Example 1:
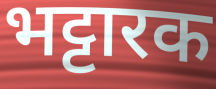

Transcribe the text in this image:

भट्टारक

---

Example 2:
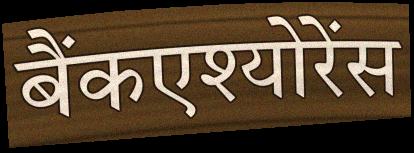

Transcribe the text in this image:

बैंकएश्योरेंस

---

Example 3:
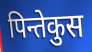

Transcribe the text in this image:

पिन्तेकुस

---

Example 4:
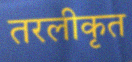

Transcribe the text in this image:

तरलीकृत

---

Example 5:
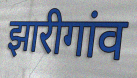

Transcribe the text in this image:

झारीगांव